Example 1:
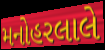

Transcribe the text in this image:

મનોહરલાલે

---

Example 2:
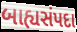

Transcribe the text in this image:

બાહ્યસંપદા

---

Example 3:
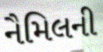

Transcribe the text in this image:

નૈમિલની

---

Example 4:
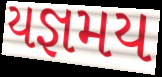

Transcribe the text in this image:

યજ્ઞમય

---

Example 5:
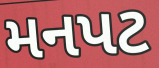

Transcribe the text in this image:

મનપટ